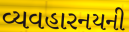
વ્યવહારનયની